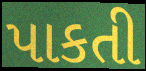
પાકતી